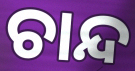
ଚାନ୍ଦ